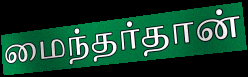
மைந்தர்தான்